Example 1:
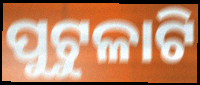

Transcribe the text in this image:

ପୁଟୁଳାଟି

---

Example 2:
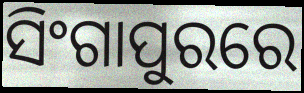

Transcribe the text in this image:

ସିଂଗାପୁରରେ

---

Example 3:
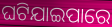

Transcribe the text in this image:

ଘଟିଯାଇପାରେ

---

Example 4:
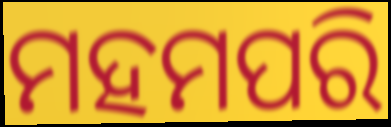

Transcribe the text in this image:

ମହମପରି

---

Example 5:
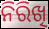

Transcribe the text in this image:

ନିରିଖି